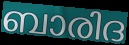
ബാരിദ